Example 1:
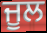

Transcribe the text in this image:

ਜੂਲ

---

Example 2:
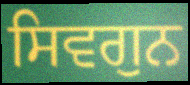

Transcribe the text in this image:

ਸਿਵਗੁਨ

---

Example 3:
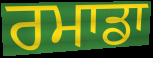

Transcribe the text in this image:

ਰਮਾਡਾ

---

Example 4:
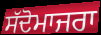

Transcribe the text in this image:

ਸੱਦੋਮਾਜਰਾ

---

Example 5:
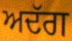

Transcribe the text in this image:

ਅਦੱਗ